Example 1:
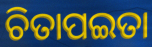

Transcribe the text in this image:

ଚିତାପଇତା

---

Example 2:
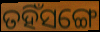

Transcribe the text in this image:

ତହିଁସଙ୍ଗେ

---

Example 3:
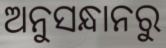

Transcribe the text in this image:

ଅନୁସନ୍ଧାନରୁ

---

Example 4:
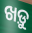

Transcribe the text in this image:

ଖଡ଼ୁ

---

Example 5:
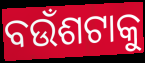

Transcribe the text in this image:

ବଉଁଶଟାକୁ